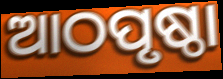
ଆଠପୃଷ୍ଠା